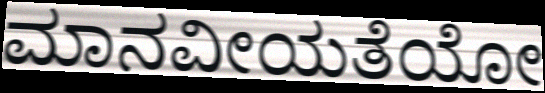
ಮಾನವೀಯತೆಯೋ